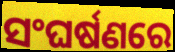
ସଂଘର୍ଷଣରେ